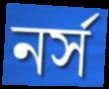
নর্স